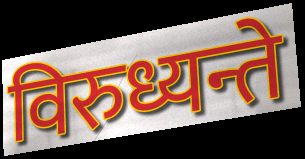
विरुध्यन्ते